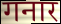
गनार